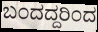
ಬಂದದ್ದರಿಂದ